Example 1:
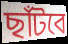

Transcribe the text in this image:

ছাঁটবে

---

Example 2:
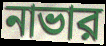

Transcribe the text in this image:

নাভার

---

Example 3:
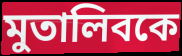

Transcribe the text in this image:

মুতালিবকে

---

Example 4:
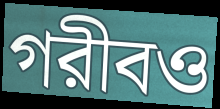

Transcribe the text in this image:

গরীবও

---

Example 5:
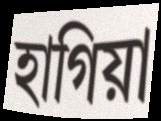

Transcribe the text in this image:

হাগিয়া